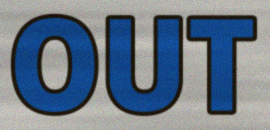
OUT